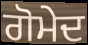
ਗੋਮੇਦ